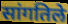
सांगतिले